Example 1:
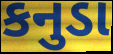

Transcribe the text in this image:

કનુડા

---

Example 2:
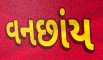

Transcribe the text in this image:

વનછાંય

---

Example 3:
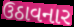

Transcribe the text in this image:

ઉઠાવનાર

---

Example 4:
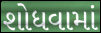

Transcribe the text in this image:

શોધવામાં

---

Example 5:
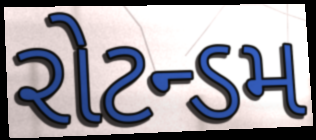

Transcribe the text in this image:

રોટન્ડમ